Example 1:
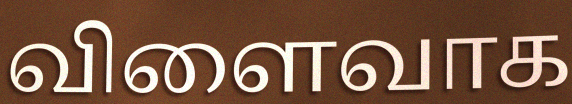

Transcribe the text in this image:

விளைவாக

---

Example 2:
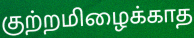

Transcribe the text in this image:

குற்றமிழைக்காத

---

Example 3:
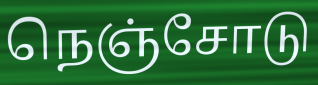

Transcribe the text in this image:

நெஞ்சோடு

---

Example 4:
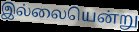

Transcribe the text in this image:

இல்லையென்று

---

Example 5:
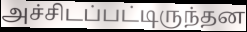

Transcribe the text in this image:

அச்சிடப்பட்டிருந்தன